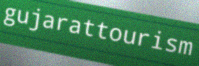
gujarattourism